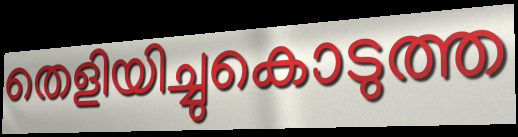
തെളിയിച്ചുകൊടുത്ത